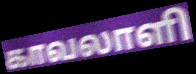
காவலாளி